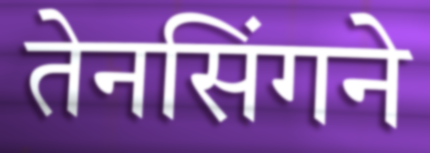
तेनसिंगने